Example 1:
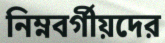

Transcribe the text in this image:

নিম্নবর্গীয়দের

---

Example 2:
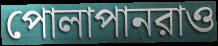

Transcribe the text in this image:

পোলাপানরাও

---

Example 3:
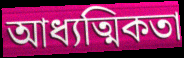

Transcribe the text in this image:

আধ্যত্মিকতা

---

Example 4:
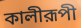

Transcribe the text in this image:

কালীরূপী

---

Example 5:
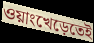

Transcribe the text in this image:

ওয়াংখেড়েতেই